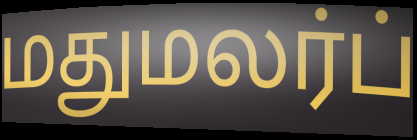
மதுமலர்ப்